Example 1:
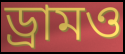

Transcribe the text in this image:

ড্রামও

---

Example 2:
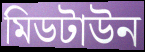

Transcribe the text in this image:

মিডটাউন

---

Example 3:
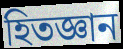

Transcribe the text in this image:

হিতজ্ঞান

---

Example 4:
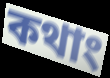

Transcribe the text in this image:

কথাং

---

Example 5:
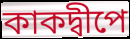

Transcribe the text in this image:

কাকদ্বীপে